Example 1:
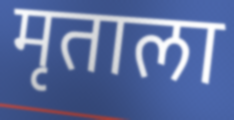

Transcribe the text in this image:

मृताला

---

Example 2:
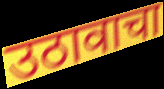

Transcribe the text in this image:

उठावाचा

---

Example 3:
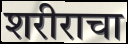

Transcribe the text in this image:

शरीराचा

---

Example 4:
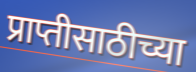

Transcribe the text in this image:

प्राप्तीसाठीच्या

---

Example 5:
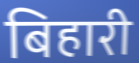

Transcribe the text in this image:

बिहारी